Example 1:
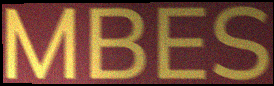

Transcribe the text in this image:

MBES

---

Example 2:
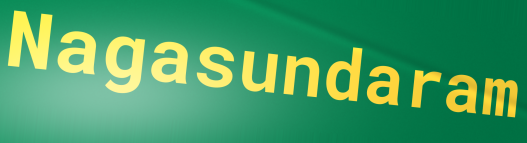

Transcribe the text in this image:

Nagasundaram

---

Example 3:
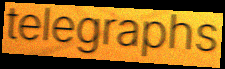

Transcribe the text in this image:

telegraphs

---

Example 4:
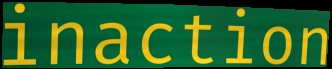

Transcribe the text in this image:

inaction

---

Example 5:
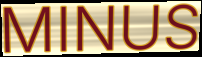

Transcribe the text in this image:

MINUS